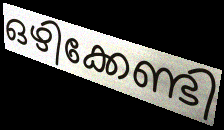
ഒഴിക്കേണ്ടി